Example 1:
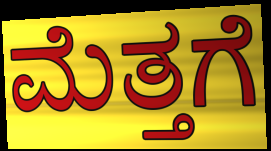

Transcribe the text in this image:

ಮೆತ್ತಗೆ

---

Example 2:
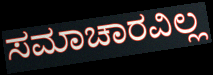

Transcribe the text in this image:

ಸಮಾಚಾರವಿಲ್ಲ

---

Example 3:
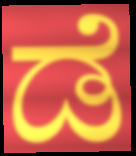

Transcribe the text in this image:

ಡೆ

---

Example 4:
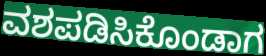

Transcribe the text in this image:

ವಶಪಡಿಸಿಕೊಂಡಾಗ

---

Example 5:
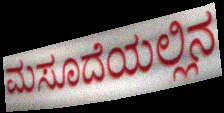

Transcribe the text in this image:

ಮಸೂದೆಯಲ್ಲಿನ